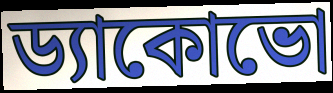
ড্যাকোভো